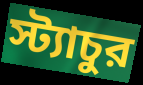
স্ট্যাচুর